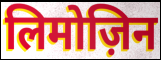
लिमोज़िन